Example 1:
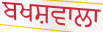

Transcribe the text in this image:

ਬਖਸ਼ਵਾਲਾ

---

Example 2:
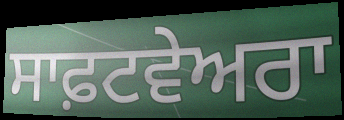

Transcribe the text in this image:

ਸਾਫ਼ਟਵੇਅਰਾ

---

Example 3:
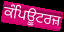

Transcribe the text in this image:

ਕੰਪਿਊਟਰਜ਼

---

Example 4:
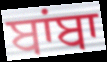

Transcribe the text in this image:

ਬਾਂਬਾ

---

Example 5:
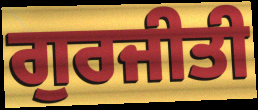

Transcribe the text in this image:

ਗੁਰਜੀਤੀ